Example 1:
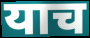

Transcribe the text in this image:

याच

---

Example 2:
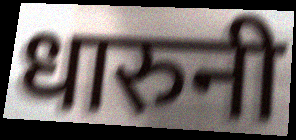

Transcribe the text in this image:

धारुनी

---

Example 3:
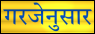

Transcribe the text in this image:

गरजेनुसार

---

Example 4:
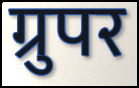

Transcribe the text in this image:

ग्रुपर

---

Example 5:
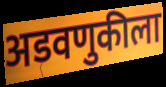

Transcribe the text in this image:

अडवणुकीला